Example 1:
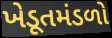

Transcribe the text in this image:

ખેડૂતમંડળો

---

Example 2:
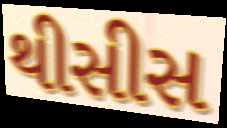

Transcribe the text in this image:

થીસીસ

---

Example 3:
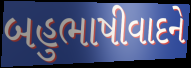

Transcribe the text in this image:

બહુભાષીવાદને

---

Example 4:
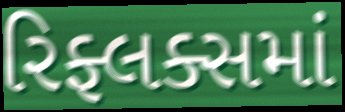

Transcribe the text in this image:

રિફ્લક્સમાં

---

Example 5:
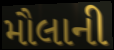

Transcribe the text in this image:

મૌલાની